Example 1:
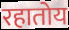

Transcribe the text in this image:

रहातोय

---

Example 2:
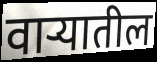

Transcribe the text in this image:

वाऱ्यातील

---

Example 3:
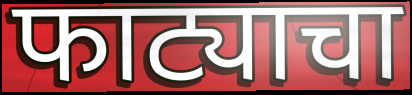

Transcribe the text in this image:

फाट्याचा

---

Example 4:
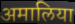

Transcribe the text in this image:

अमालिया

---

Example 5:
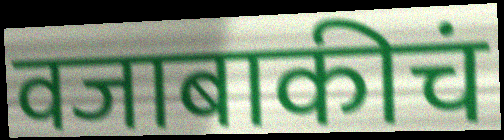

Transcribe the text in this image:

वजाबाकीचं